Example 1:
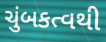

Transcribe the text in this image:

ચુંબકત્વથી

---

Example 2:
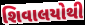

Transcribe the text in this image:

શિવાલયોથી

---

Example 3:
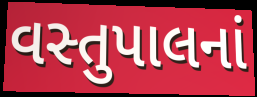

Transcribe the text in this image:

વસ્તુપાલનાં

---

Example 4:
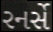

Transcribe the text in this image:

રનર્સે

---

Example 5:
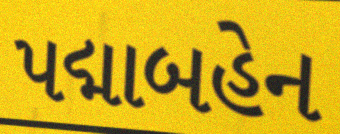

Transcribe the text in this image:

પદ્માબહેન